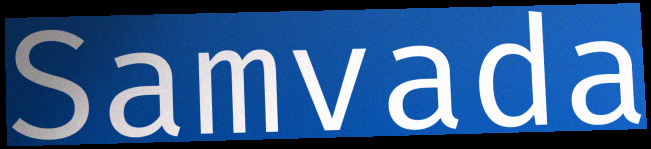
Samvada